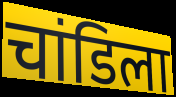
चांडिला